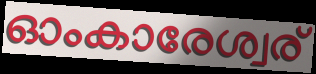
ഓംകാരേശ്വര്